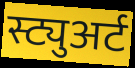
स्ट्युअर्ट